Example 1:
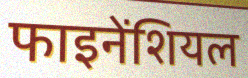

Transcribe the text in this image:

फाइनेंशियल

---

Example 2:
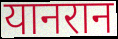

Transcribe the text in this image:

यानरान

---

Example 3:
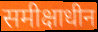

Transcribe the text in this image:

समीक्षाधीन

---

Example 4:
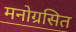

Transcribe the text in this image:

मनोग्रसित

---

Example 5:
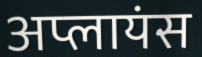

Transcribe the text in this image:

अप्‍लायंस